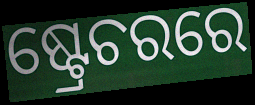
ଷ୍ଟ୍ରେଚରରେ